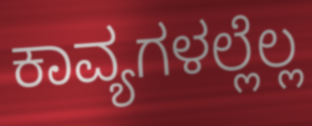
ಕಾವ್ಯಗಳಲ್ಲೆಲ್ಲ